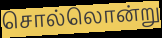
சொல்லொன்று